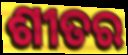
ଶୀତର